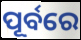
ପୂର୍ବରେ